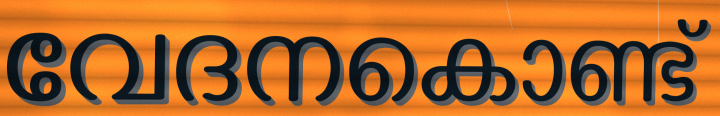
വേദനകൊണ്ട്